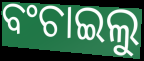
ବଂଚାଇଲୁ